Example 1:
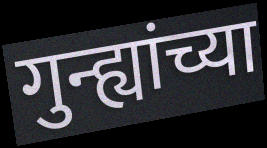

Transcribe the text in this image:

गुन्ह्यांच्या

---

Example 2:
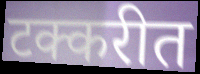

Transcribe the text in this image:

टक्करीत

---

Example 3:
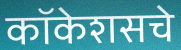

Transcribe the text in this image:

कॉकेशसचे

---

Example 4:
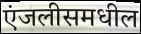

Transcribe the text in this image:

एंजलीसमधील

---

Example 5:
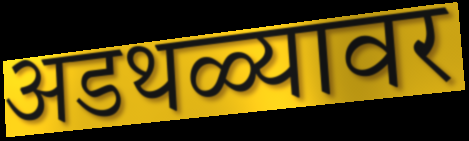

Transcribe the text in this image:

अडथळ्यावर